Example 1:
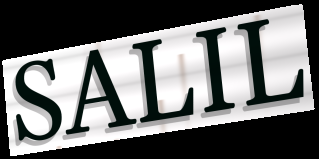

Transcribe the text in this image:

SALIL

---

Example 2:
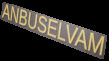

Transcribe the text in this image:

ANBUSELVAM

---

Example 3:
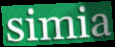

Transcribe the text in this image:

simia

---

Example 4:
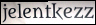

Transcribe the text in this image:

jelentkezz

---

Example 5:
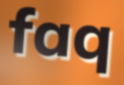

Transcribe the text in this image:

faq